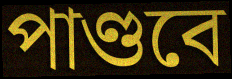
পাণ্ডবে